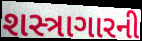
શસ્ત્રાગારની